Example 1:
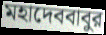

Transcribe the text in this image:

মহাদেববাবুর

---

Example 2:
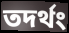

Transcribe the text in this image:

তদর্থং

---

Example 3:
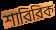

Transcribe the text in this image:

শারিরিক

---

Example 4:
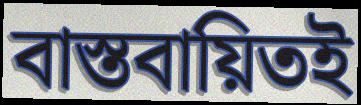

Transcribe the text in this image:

বাস্তবায়িতই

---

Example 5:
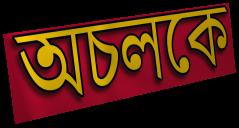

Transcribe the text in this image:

অচলকে